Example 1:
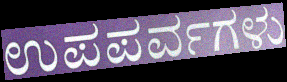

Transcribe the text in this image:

ಉಪಪರ್ವಗಳು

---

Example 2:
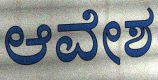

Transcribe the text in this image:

ಆವೇಶ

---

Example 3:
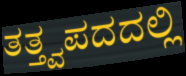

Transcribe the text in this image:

ತತ್ತ್ವಪದದಲ್ಲಿ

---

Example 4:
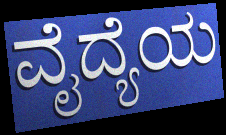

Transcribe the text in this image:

ವೈದ್ಯೆಯ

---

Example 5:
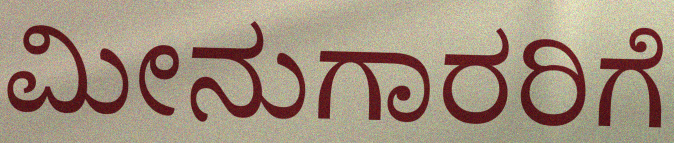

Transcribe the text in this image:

ಮೀನುಗಾರರಿಗೆ